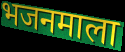
भजनमाला